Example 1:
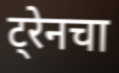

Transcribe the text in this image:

ट्रेनचा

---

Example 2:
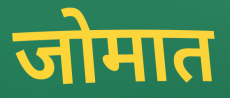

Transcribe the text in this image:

जोमात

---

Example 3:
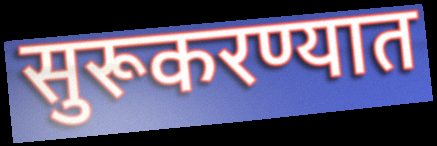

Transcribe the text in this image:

सुरूकरण्यात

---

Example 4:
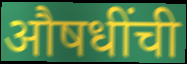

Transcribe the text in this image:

औषधींची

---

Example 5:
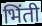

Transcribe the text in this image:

भिंती